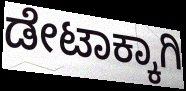
ಡೇಟಾಕ್ಕಾಗಿ